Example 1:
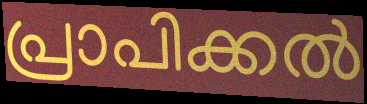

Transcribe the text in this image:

പ്രാപിക്കൽ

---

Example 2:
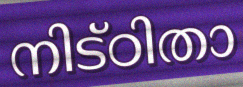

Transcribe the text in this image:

നിട്ഠിതാ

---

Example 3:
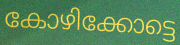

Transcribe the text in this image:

കോഴിക്കോട്ടെ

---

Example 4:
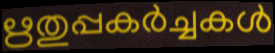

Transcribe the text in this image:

ഋതുപ്പകർച്ചകൾ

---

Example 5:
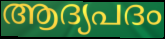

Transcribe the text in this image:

ആദ്യപദം